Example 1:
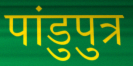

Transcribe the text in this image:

पांडुपुत्र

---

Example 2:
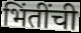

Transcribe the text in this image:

भिंतींची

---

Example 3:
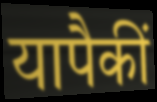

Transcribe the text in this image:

यापैकीं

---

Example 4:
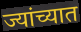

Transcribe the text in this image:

ज्यांच्यात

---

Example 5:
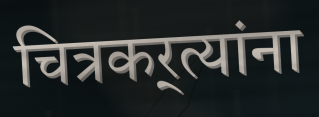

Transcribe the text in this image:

चित्रकर्त्यांना